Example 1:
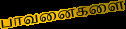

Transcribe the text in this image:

பாவனைகளை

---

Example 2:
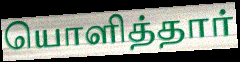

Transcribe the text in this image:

யொளித்தார்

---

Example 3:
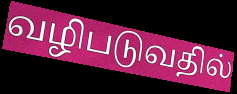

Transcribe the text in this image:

வழிபடுவதில்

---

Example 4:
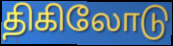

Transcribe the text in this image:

திகிலோடு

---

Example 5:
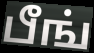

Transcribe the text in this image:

பீங்